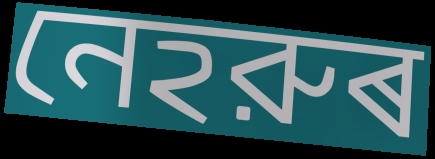
নেহৰুৰ